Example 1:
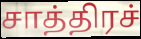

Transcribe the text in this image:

சாத்திரச்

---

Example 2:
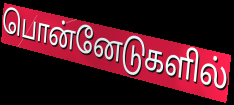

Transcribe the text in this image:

பொன்னேடுகளில்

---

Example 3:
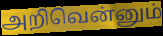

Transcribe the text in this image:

அறிவென்னும்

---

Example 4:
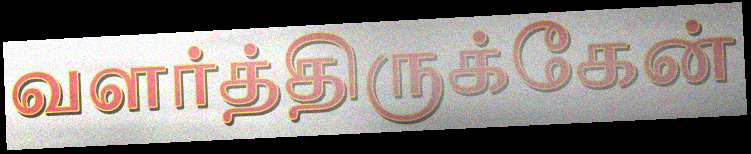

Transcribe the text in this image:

வளர்த்திருக்கேன்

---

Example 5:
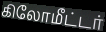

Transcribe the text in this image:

கிலோமீட்டர்